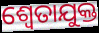
ଶ୍ଵେତାଯୁକ୍ତ